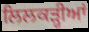
ਲਿਲਕੜ੍ਹੀਆਂ